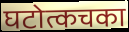
घटोत्कचका